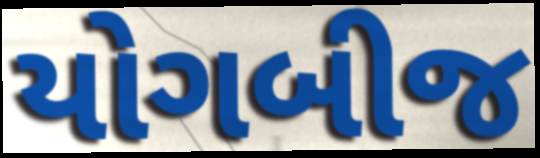
યોગબીજ